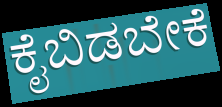
ಕೈಬಿಡಬೇಕೆ